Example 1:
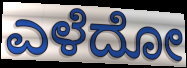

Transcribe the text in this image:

ಎಳೆದೋ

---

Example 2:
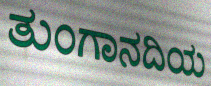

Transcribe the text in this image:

ತುಂಗಾನದಿಯ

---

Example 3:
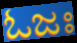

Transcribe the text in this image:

ಓಜಃ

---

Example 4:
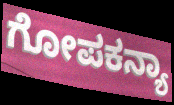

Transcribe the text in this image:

ಗೋಪಕನ್ಯಾ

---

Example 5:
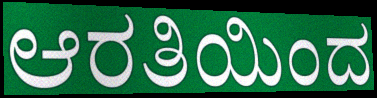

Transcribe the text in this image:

ಆರತಿಯಿಂದ